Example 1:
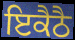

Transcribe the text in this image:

ਇਕੈਠੈ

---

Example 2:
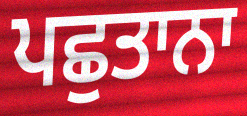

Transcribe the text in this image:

ਪਛੁਤਾਨਾ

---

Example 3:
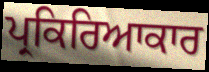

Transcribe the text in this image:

ਪ੍ਰਕਿਰਿਆਕਾਰ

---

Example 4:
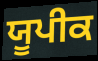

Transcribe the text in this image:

ਯੂਪੀਕ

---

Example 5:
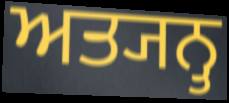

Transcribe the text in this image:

ਅਤ੍ਯਨ੍ਤ